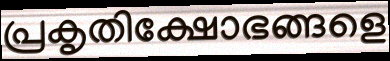
പ്രകൃതിക്ഷോഭങ്ങളെ